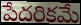
పేదరికమే